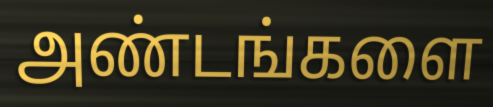
அண்டங்களை